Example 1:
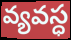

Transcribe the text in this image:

వ్యవస్ధ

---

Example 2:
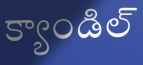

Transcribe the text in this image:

క్యాండిల్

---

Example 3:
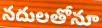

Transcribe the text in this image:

నదులతోనూ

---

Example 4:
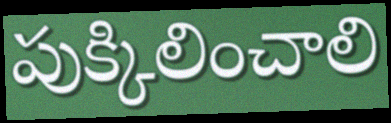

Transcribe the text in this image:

పుక్కిలించాలి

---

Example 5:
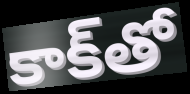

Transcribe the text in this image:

కాక్‌తో